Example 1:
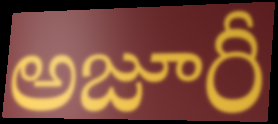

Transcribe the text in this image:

అజూరీ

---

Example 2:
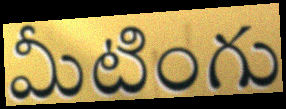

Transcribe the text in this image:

మీటింగు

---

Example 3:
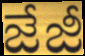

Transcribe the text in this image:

జేజీ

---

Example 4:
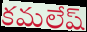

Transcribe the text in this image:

కమలేష్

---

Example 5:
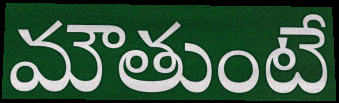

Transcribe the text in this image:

మౌతుంటే